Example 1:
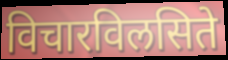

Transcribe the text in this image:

विचारविलसिते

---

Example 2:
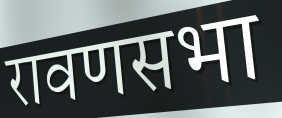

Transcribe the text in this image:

रावणसभा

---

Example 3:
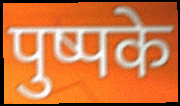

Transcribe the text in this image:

पुष्पके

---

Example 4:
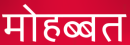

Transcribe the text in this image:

मोहब्बत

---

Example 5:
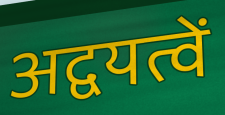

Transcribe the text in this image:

अद्वयत्वें